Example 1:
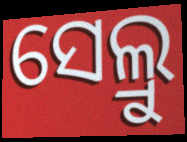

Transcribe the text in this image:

ସେଲ୍ରୁ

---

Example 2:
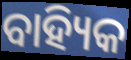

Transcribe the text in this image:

ବାହ୍ୟିକ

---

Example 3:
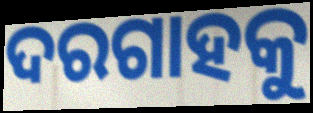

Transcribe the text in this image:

ଦରଗାହକୁ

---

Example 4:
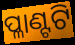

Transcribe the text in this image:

ପ୍ଳାଣ୍ଟଟି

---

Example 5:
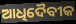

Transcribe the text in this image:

ଆଧିଦୈବୀକ